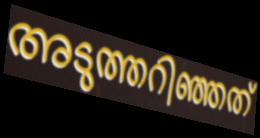
അടുത്തറിഞ്ഞത്